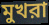
মুখরা